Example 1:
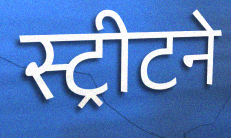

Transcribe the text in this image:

स्ट्रीटने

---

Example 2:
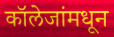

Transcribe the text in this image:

कॉलेजांमधून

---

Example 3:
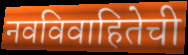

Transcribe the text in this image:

नवविवाहितेची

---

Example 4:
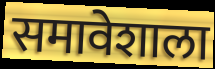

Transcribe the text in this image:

समावेशाला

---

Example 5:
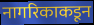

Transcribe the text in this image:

नागरिकाकडून